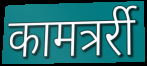
कामत्रर्री